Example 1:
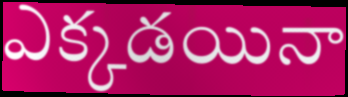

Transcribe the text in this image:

ఎక్కడయినా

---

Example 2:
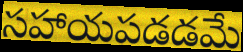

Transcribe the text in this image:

సహాయపడడమే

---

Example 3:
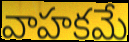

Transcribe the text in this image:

వాహకమే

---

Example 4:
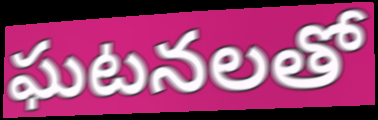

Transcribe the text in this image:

ఘటనలతో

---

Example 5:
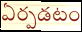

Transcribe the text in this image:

ఏర్పడటం